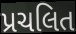
પ્રચલિત